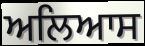
ਅਲਿਆਸ